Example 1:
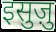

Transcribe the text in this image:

इसुज़ु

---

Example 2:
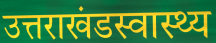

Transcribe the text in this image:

उत्तराखंडस्वास्थ्य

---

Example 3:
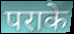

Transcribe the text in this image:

पराके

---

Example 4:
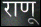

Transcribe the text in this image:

राणू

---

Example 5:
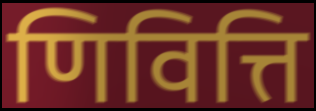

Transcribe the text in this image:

णिवित्ति